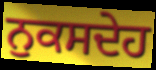
ਨੁਕਸਦੇਹ